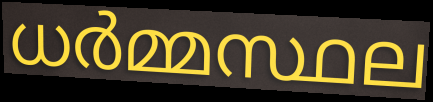
ധർമ്മസ്ഥല